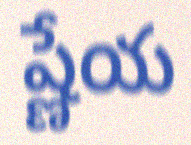
ష్ణేయ